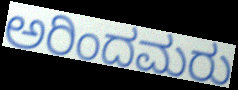
ಅರಿಂದಮರು